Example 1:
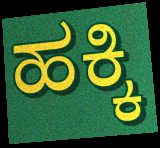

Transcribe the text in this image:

ಹಕ್ಕಿ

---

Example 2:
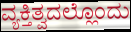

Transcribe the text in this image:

ವ್ಯಕ್ತಿತ್ವದಲ್ಲೊಂದು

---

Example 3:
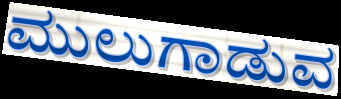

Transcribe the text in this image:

ಮುಲುಗಾಡುವ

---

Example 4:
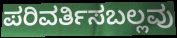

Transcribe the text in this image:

ಪರಿವರ್ತಿಸಬಲ್ಲವು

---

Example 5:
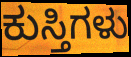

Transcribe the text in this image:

ಕುಸ್ತಿಗಳು